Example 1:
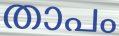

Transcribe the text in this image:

താപം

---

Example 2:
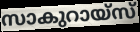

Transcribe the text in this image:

സാകുറായ്സ്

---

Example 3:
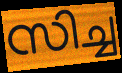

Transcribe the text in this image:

സിച്ച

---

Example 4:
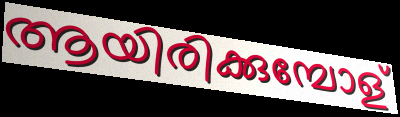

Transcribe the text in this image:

ആയിരിക്കുമ്പോള്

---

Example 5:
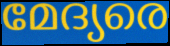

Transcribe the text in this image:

മേദ്യരെ